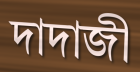
দাদাজী